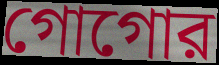
গোগোর